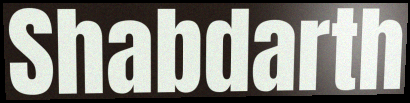
Shabdarth